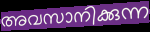
അവസാനിക്കുന്ന